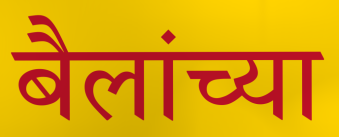
बैलांच्या